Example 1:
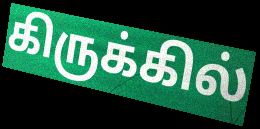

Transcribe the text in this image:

கிருக்கில்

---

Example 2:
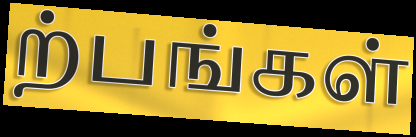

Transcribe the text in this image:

ற்பங்கள்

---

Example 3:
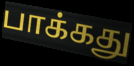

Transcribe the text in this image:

பாக்கது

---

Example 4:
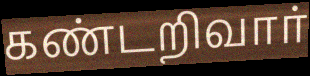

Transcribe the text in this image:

கண்டறிவார்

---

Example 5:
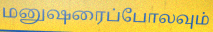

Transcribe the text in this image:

மனுஷரைப்போலவும்